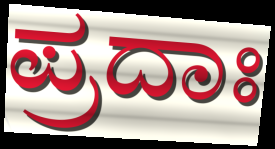
ಪ್ರದಾಃ